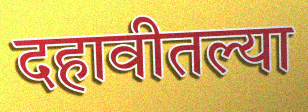
दहावीतल्या